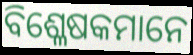
ବିଶ୍ଳେଷକମାନେ